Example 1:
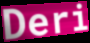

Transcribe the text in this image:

Deri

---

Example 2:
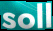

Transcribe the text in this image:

soll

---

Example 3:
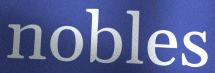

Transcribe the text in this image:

nobles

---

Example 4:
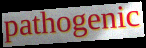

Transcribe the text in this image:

pathogenic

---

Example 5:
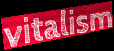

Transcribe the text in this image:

vitalism